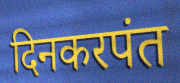
दिनकरपंत